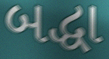
બદ્ધા